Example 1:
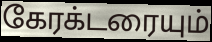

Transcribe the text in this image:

கேரக்டரையும்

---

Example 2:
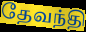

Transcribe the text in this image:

தேவந்தி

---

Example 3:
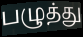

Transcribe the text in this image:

பழுத்து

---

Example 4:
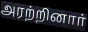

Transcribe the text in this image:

அரற்றினார்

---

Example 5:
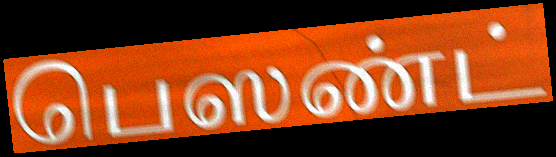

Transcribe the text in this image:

பெஸண்ட்